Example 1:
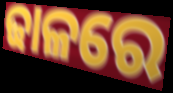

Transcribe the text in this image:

ଢାଳରେ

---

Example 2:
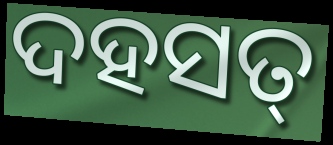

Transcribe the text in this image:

ଦହସତ୍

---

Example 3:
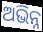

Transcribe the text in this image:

ଅଭିନ୍ନ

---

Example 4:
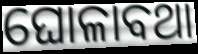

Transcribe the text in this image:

ଘୋଳାବଥା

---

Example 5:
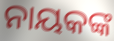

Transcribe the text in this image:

ନାୟକଙ୍କ